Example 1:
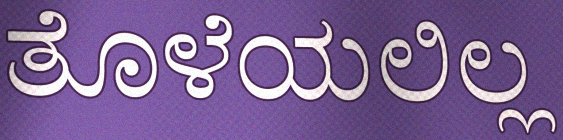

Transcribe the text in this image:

ತೊಳೆಯಲಿಲ್ಲ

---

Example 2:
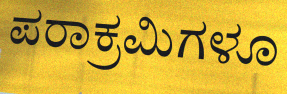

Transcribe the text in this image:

ಪರಾಕ್ರಮಿಗಳೂ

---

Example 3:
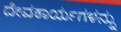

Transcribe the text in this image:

ದೇವಕಾರ್ಯಗಳನ್ನು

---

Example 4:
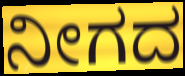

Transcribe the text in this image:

ನೀಗದ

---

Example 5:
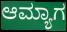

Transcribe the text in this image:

ಆಮ್ಯಾಗ